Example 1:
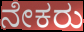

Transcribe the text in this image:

ನೇಕರು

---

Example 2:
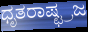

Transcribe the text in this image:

ಧೃತರಾಷ್ಟ್ರಜ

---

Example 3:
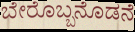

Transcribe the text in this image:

ಬೇರೊಬ್ಬನೊಡನೆ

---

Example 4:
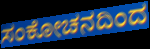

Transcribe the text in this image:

ಸಂಕೋಚನದಿಂದ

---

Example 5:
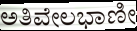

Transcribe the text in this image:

ಅತಿವೇಲಭಾಣೀ